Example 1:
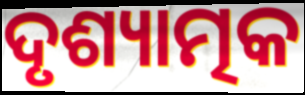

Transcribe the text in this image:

ଦୃଶ୍ୟାତ୍ମକ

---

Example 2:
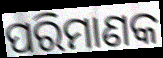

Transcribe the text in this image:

ପରିମାଣକ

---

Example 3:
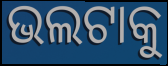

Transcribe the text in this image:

ଭଲଟାକୁ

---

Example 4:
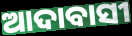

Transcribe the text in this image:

ଆଦାବାସୀ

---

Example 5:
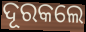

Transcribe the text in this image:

ଦୂରକଲେ